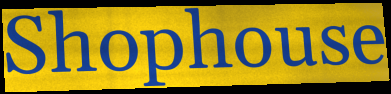
Shophouse